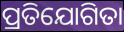
ପ୍ରତିଯୋଗିତା